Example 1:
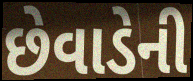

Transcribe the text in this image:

છેવાડેની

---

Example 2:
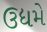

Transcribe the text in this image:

ઉદ્યમે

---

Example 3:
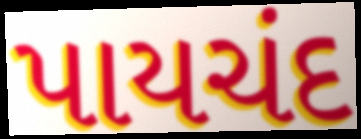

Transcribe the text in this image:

પાયચંદ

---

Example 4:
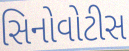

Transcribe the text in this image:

સિનોવોટીસ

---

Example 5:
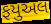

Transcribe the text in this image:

ફયુઅલ